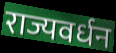
राज्‍यवर्धन